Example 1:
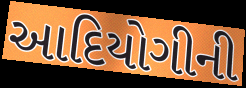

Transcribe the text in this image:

આદિયોગીની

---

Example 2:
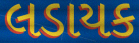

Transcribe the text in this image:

લડાયક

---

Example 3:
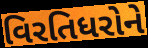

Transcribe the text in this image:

વિરતિધરોને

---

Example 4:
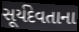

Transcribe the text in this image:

સૂર્યદેવતાના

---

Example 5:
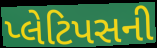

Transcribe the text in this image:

પ્લેટિપસની